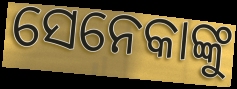
ସେନେକାଙ୍କୁ